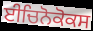
ਈਚਿਨੋਕੋਕਸ